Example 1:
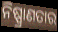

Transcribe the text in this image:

ନିଷ୍ପ୍ରାଣତାର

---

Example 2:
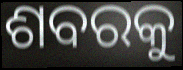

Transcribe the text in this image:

ଶବରକୁ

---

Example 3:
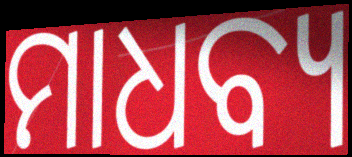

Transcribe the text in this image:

ମାଧବ୍ୟ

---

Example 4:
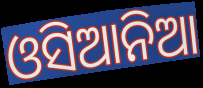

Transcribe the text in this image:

ଓସିଆନିଆ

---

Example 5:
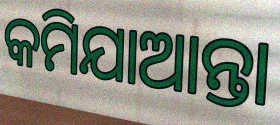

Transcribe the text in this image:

କମିଯାଆନ୍ତା